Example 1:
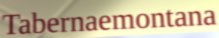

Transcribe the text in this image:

Tabernaemontana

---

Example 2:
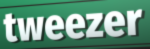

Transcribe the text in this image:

tweezer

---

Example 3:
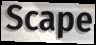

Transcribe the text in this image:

Scape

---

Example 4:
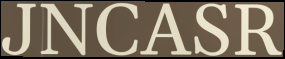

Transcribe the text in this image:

JNCASR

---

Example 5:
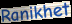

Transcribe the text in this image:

Ranikhet